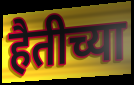
हैतीच्या